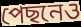
পেছনেও